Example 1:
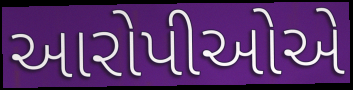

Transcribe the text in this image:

આરોપીઓએ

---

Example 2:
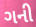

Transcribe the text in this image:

ગની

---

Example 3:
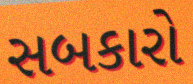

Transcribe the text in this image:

સબકારો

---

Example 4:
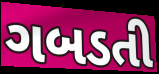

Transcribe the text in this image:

ગબડતી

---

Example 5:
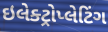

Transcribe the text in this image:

ઇલેક્ટ્રોપ્લેટિંગ